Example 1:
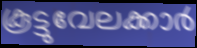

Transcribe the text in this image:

കൂട്ടുവേലക്കാർ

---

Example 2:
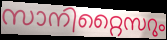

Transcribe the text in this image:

സാനിറ്റൈസറും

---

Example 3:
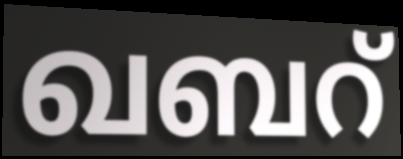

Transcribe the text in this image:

ഖബറ്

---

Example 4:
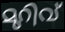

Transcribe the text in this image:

മുറിവ്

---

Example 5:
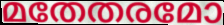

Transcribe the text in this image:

മതേതരമോ